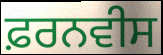
ਫ਼ਰਨਵੀਸ